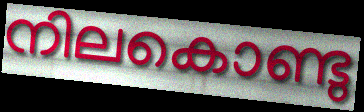
നിലകൊണ്ടു